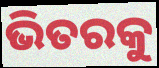
ଭିତରକୁ